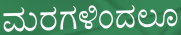
ಮರಗಳಿಂದಲೂ